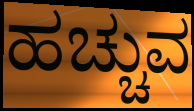
ಹಚ್ಚುವ